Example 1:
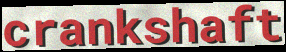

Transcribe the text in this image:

crankshaft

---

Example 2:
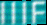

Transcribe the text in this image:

IIIF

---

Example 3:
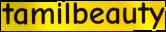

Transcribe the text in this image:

tamilbeauty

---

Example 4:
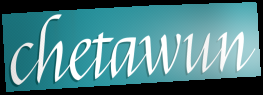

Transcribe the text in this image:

chetawun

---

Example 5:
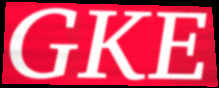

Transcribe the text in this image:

GKE